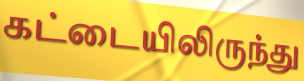
கட்டையிலிருந்து